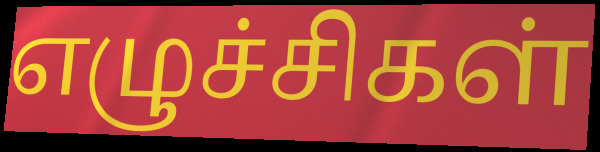
எழுச்சிகள்